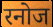
रनोज